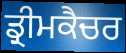
ਡ੍ਰੀਮਕੈਚਰ